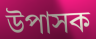
উপাসক